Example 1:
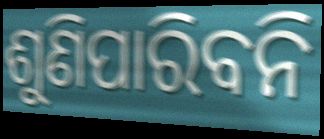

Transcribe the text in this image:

ଶୁଣିପାରିବନି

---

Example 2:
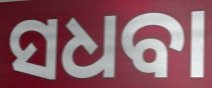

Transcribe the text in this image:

ସଧବା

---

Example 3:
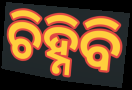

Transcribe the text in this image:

ଚିହ୍ନିବି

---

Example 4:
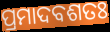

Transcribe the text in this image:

ପ୍ରମାଦବଶତଃ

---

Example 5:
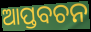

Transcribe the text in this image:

ଆପ୍ତବଚନ